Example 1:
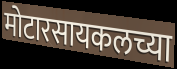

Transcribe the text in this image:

मोटारसायकलच्या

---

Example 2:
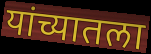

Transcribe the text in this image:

यांच्यातला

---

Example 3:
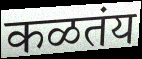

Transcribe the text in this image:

कळतंय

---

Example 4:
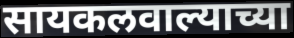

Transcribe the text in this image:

सायकलवाल्याच्या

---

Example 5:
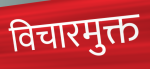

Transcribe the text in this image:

विचारमुक्त